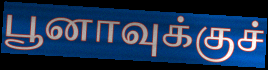
பூனாவுக்குச்